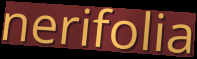
nerifolia